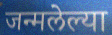
जन्मलेल्या